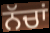
ਨੱਚਾਂ